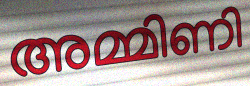
അമ്മിണി